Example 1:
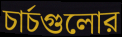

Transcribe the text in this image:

চার্চগুলোর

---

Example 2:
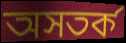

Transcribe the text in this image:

অসতর্ক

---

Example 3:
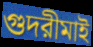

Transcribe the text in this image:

গুদরীমাই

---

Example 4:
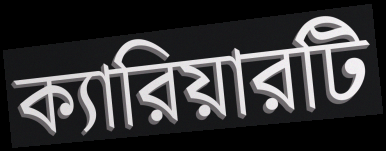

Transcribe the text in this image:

ক্যারিয়ারটি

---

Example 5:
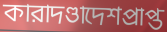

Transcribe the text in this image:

কারাদণ্ডাদেশপ্রাপ্ত